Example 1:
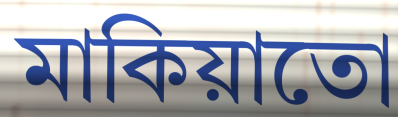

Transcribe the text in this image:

মাকিয়াতো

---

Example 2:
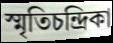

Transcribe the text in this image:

স্মৃতিচন্দ্রিকা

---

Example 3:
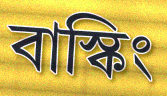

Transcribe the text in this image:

বাস্কিং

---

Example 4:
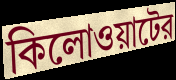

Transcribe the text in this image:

কিলোওয়াটের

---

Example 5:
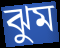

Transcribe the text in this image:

ঝুম